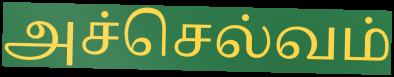
அச்செல்வம்